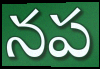
నప